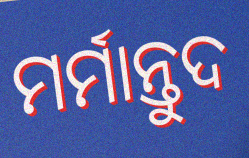
ମର୍ମାନ୍ତୁଦ